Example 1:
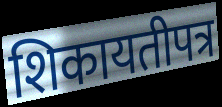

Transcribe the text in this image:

शिकायतीपत्र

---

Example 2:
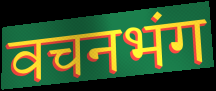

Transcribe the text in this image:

वचनभंग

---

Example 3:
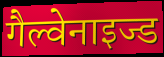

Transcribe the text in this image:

गैल्वेनाइज्ड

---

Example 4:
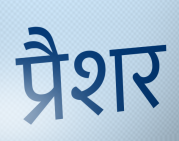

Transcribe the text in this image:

प्रैशर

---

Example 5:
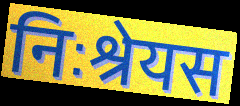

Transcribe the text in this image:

निःश्रेयस